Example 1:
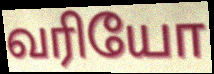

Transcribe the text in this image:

வரியோ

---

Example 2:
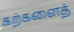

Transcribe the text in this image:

கற்களைத்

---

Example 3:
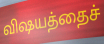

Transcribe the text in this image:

விஷயத்தைச்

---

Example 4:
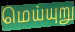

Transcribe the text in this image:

மெய்யுறு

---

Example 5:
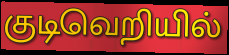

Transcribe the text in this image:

குடிவெறியில்